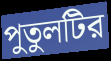
পুতুলটির